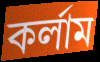
কর্লাম